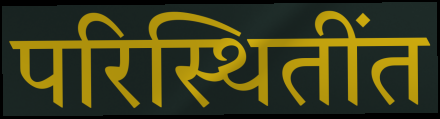
परिस्थितींत